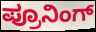
ಪ್ರೂನಿಂಗ್